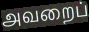
அவறைப்